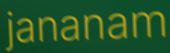
jananam